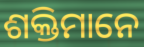
ଶକ୍ତିମାନେ